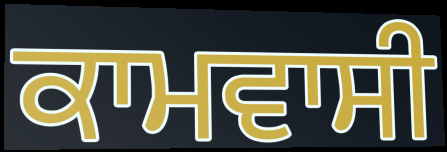
ਕਾਮਵਾਸੀ